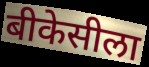
बीकेसीला